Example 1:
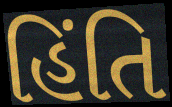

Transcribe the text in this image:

હિંતિ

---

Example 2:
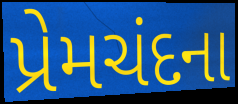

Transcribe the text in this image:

પ્રેમચંદના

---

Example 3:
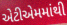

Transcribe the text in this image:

એટીએમમાંથી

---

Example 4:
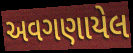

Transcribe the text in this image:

અવગણાયેલ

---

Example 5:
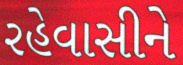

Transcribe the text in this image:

રહેવાસીને